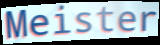
Meister